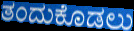
ತಂದುಕೊಡಲು